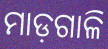
ମାଡ଼ଗାଳି